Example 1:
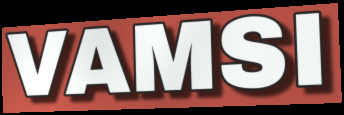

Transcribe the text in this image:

VAMSI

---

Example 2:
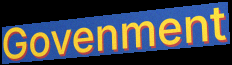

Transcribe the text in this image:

Govenment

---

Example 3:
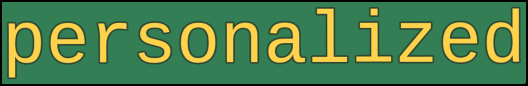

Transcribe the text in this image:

personalized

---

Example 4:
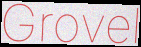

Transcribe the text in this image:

Grovel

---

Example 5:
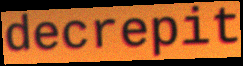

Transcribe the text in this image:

decrepit